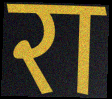
रा